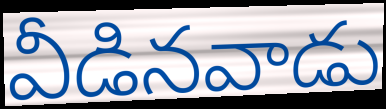
వీడినవాడు